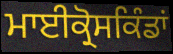
ਮਾਈਕ੍ਰੋਸਕਿੰਡਾਂ